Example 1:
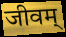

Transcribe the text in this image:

जीवम्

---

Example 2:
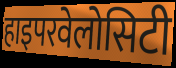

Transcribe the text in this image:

हाइपरवेलोसिटी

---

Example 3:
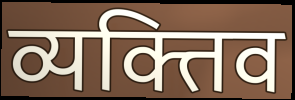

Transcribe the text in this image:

व्यक्तिव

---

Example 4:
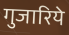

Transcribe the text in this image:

गुजारिये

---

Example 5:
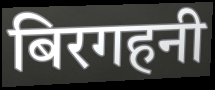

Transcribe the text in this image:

बिरगहनी